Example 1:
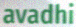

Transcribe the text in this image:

avadhi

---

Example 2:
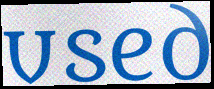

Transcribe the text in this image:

used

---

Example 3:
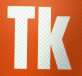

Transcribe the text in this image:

Tk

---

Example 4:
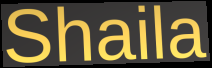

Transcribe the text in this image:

Shaila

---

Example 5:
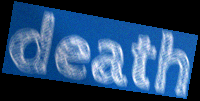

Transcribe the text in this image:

death